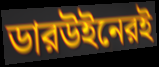
ডারউইনেরই